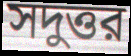
সদুত্তর